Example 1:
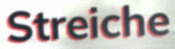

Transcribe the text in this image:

Streiche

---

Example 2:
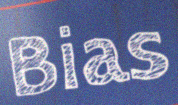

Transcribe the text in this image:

Bias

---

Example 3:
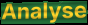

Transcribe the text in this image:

Analyse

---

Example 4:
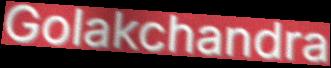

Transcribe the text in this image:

Golakchandra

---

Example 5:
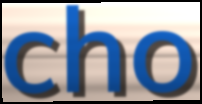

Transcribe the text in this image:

cho